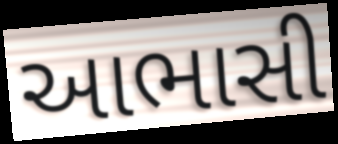
આભાસી